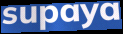
supaya